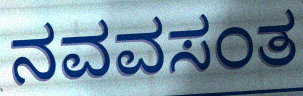
ನವವಸಂತ